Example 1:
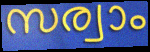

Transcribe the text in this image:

സര്വാം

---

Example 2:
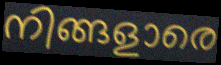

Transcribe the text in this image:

നിങ്ങളാരെ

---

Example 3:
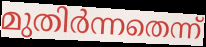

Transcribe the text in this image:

മുതിർന്നതെന്ന്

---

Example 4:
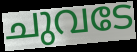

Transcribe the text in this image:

ചുവടേ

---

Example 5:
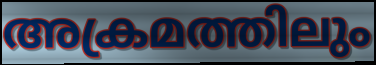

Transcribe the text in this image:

അക്രമത്തിലും